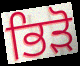
ਭਿੜੋ